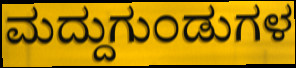
ಮದ್ದುಗುಂಡುಗಳ